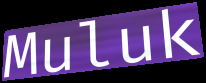
Muluk